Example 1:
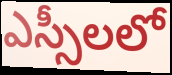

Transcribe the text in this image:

ఎస్సీలలో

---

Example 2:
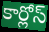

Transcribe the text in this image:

కార్లోస్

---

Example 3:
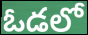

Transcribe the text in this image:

ఓడలో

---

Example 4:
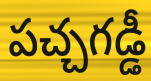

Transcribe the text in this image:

పచ్చగడ్డీ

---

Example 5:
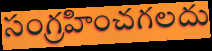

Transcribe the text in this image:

సంగ్రహించగలదు